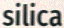
silica